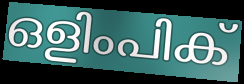
ഒളിംപിക്